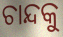
ଚାନ୍ଦକୁ